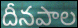
దీనపాల